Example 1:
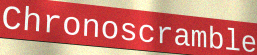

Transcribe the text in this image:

Chronoscramble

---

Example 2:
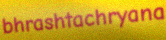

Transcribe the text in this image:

bhrashtachryana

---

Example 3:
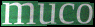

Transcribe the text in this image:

muco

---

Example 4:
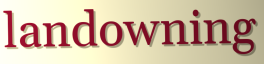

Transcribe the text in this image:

landowning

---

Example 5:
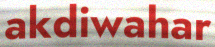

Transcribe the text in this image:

akdiwahar